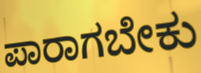
ಪಾರಾಗಬೇಕು